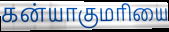
கன்யாகுமரியை